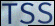
TSS